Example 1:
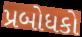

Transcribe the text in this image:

પ્રબોધકો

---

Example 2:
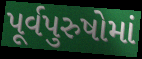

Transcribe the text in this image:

પૂર્વપુરુષોમાં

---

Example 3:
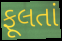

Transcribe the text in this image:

ફૂલતાં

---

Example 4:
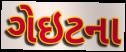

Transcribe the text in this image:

ગેઇટના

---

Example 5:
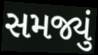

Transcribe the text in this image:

સમજ્યું